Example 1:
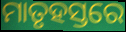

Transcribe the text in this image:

ମାତୃହସ୍ତରେ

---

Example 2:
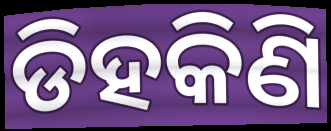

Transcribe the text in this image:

ଡିହକିଣି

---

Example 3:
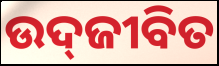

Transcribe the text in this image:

ଉଦ୍‍ଜୀବିତ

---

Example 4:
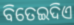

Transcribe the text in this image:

ବିତେଇଦିଏ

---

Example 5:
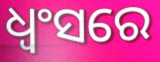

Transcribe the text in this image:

ଧ୍ଵଂସରେ